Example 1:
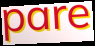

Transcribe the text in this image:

pare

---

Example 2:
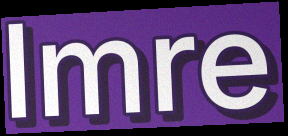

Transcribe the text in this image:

Imre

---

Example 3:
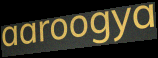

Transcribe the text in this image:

aaroogya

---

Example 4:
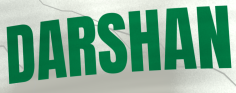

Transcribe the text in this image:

DARSHAN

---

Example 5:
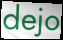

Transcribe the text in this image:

dejo